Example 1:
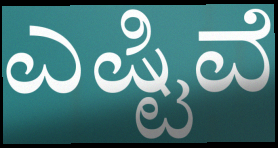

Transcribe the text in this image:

ಎಷ್ಟಿವೆ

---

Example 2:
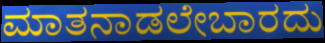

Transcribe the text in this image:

ಮಾತನಾಡಲೇಬಾರದು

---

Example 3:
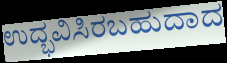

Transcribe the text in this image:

ಉದ್ಭವಿಸಿರಬಹುದಾದ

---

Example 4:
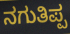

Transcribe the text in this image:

ನಗುತಿಪ್ಪ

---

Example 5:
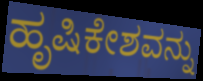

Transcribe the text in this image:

ಹೃಷಿಕೇಶವನ್ನು